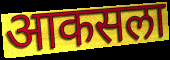
आकसला